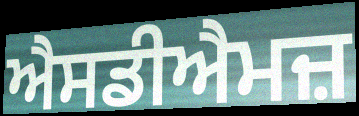
ਐਸਡੀਐਮਜ਼